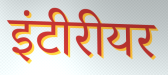
इंटीरीयर